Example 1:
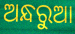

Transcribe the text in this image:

ଅନ୍ଧରୁଆ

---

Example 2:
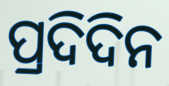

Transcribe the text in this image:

ପ୍ରଦିଦିନ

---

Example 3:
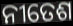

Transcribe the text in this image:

ନୀତେଶ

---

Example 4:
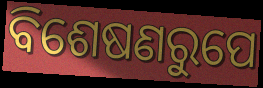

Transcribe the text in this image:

ବିଶେଷଣରୁପେ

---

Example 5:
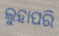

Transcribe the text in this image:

ଲୁହାପରି